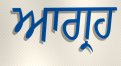
ਆਗ੍ਰਹ